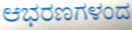
ಆಭರಣಗಳಂದ